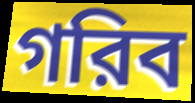
গরিব